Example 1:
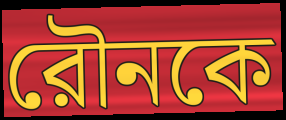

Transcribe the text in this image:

রৌনকে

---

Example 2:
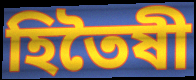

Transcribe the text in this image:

হিতৈষী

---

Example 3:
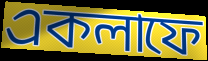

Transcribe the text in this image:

একলাফে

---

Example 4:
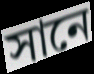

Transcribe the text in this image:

সানে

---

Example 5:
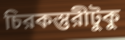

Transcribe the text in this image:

চিরকস্তুরীটুকু